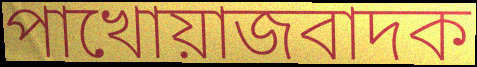
পাখোয়াজবাদক